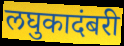
लघुकादंबरी